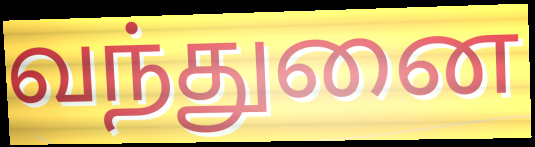
வந்துனை